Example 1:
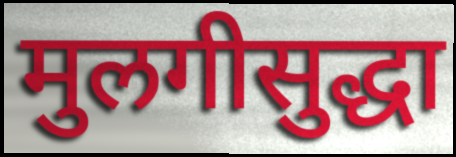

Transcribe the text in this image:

मुलगीसुद्धा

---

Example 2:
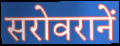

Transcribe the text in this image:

सरोवरानें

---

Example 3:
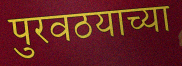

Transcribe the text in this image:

पुरवठयाच्या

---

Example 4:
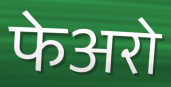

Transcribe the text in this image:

फेअरो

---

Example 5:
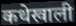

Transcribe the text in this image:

कथेखाली